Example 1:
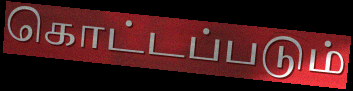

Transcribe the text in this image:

கொட்டப்படும்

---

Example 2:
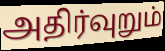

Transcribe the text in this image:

அதிர்வுறும்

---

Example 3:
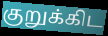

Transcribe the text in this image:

குறுக்கிட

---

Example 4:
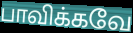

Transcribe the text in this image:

பாவிக்கவே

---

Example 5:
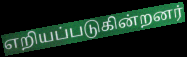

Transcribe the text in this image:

எறியப்படுகின்றனர்